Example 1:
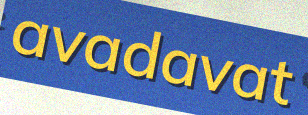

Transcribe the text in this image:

avadavat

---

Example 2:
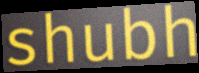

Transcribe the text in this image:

shubh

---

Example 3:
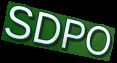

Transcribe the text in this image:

SDPO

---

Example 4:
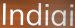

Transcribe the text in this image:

Indiai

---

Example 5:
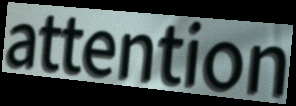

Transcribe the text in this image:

attention